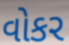
વોકર